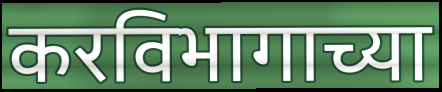
करविभागाच्या